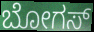
ಬೋಗಸ್